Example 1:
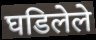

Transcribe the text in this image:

घडिलेले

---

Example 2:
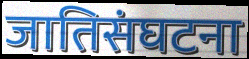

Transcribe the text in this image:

जातिसंघटना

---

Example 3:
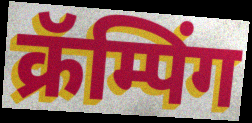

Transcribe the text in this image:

क्रॅम्पिंग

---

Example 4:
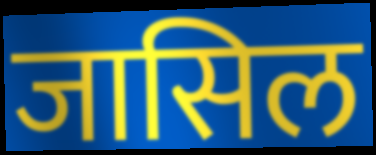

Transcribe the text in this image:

जासिल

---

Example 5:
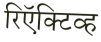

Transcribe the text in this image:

रिऍक्टिव्ह